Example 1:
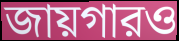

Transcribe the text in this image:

জায়গারও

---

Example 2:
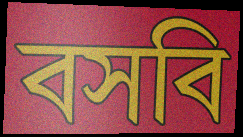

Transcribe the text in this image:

বসবি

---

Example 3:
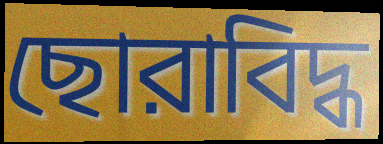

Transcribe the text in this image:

ছোরাবিদ্ধ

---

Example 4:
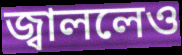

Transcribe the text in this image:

জ্বাললেও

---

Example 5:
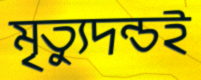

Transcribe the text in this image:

মৃত্যুদন্ডই